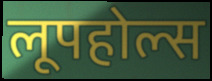
लूपहोल्स